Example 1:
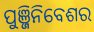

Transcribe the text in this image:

ପୁଞ୍ଜିନିବେଶର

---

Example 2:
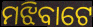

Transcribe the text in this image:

ମଝିବାଟେ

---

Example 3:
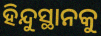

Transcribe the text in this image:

ହିନ୍ଦୁସ୍ଥାନକୁ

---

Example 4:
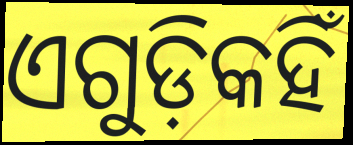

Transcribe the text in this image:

ଏଗୁଡ଼ିକହିଁ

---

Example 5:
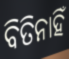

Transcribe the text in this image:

ବିତିନାହିଁ